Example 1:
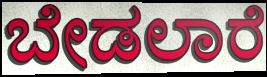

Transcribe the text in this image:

ಬೇಡಲಾರೆ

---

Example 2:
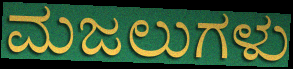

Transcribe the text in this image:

ಮಜಲುಗಳು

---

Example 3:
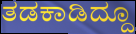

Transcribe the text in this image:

ತಡಕಾಡಿದ್ದೂ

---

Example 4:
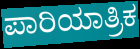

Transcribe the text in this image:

ಪಾರಿಯಾತ್ರಿಕ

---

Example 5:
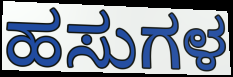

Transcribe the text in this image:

ಹಸುಗಳ